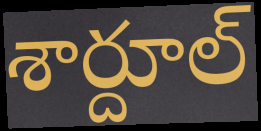
శార్దూల్